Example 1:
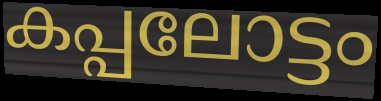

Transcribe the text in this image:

കപ്പലോട്ടം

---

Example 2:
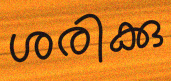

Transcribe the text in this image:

ശരിക്കു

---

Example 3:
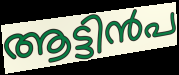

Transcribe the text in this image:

ആട്ടിൻപ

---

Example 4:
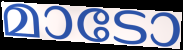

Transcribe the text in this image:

മാടോ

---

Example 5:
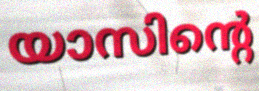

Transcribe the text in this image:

യാസിന്റെ